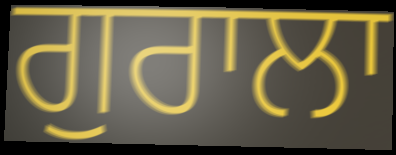
ਗੁਰਾਲਾ